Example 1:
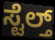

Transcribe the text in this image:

ಸ್ಟೆಲ್ತ್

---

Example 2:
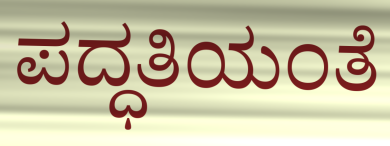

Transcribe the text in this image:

ಪದ್ಧತಿಯಂತೆ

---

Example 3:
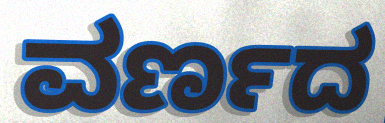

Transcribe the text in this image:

ವರ್ಣದ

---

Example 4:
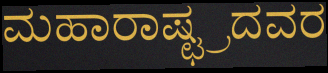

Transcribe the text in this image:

ಮಹಾರಾಷ್ಟ್ರದವರ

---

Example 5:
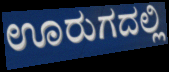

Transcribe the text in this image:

ಊರುಗದಲ್ಲಿ